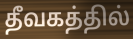
தீவகத்தில்